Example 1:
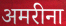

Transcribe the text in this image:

अमरीना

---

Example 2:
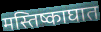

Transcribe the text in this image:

मस्तिष्काघात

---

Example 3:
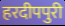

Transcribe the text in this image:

हरदीपपुरी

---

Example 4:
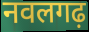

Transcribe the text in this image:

नवलगढ़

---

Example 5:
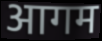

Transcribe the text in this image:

आगम